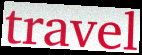
travel